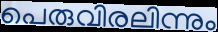
പെരുവിരലിന്നും